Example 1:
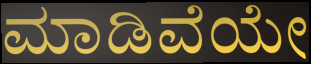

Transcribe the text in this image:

ಮಾಡಿವೆಯೇ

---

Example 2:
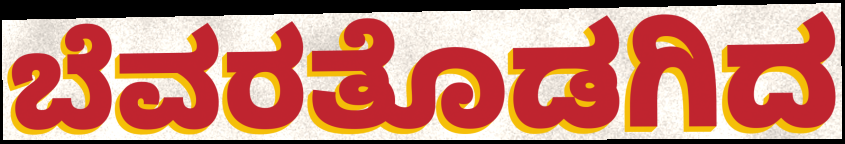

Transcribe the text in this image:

ಬೆವರತೊಡಗಿದ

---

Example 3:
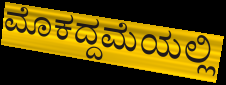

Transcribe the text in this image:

ಮೊಕದ್ದಮೆಯಲ್ಲಿ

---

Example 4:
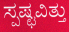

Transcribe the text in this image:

ಸ್ಪಷ್ಟವಿತ್ತು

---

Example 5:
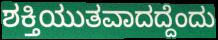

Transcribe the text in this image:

ಶಕ್ತಿಯುತವಾದದ್ದೆಂದು